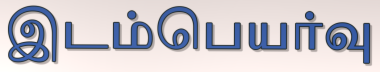
இடம்பெயர்வு